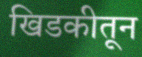
खिडकीतून